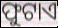
ଫୁଟାଏ